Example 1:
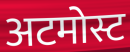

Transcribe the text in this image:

अटमोस्ट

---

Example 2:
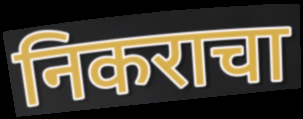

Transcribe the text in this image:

निकराचा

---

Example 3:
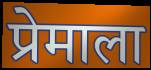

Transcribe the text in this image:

प्रेमाला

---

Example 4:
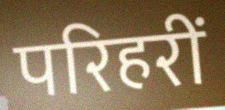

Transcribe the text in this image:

परिहरीं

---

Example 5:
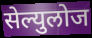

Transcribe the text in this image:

सेल्युलोज